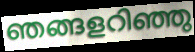
ഞങ്ങളറിഞ്ഞു